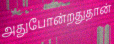
அதுபோன்றதுதான்